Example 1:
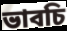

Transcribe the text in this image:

ভাবচি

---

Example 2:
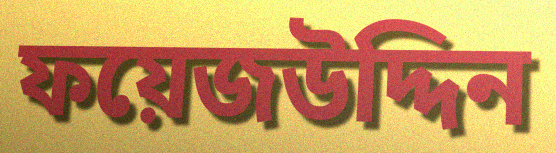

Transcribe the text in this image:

ফয়েজউদ্দিন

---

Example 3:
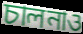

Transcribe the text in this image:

চালনাও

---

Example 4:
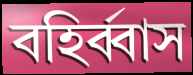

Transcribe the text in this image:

বহির্ব্বাস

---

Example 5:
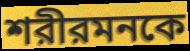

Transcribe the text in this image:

শরীরমনকে